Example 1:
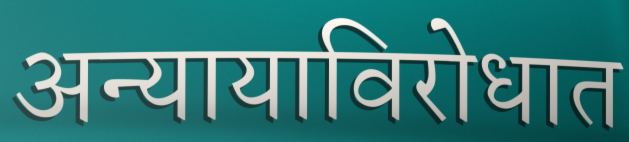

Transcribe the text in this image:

अन्यायाविरोधात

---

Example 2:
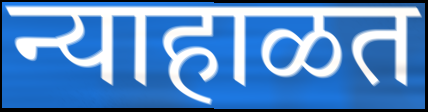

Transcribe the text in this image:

न्याहाळत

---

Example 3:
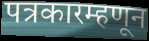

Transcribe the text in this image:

पत्रकारम्हणून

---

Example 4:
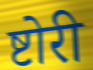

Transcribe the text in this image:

ष्टोरी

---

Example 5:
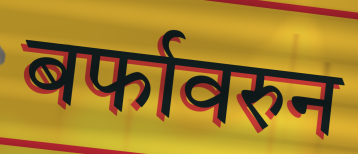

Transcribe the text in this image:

बर्फावरुन